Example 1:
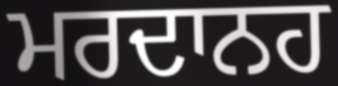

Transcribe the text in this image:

ਮਰਦਾਨਹ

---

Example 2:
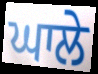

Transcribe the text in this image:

ਘਾਲੇ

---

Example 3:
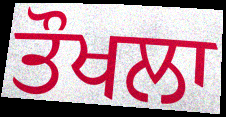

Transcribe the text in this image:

ਤੌਖਲਾ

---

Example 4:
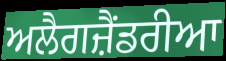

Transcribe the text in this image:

ਅਲੈਗਜ਼ੈਂਡਰੀਆ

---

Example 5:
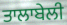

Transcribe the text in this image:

ਤਾਲਾਬੇਲੀ